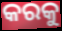
କରକୁ